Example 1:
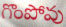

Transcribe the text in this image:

గొంపోవు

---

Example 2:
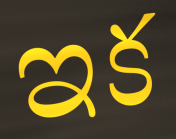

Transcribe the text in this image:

ఇక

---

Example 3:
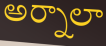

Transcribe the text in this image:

అర్నాలా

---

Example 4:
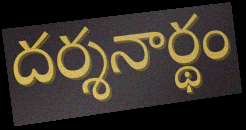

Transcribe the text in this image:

దర్శనార్థం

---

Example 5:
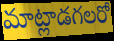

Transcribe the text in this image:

మాట్లాడగలరో